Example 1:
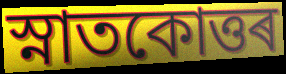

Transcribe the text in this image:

স্নাতকোত্তৰ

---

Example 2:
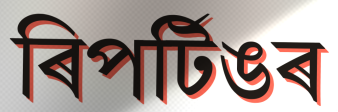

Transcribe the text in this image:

ৰিপৰ্টিঙৰ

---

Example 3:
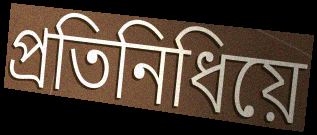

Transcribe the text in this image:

প্ৰতিনিধিয়ে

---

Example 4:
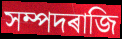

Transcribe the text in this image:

সম্পদৰাজি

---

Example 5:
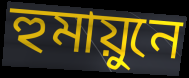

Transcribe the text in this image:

হুমায়ুনে